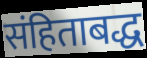
संहिताबद्ध